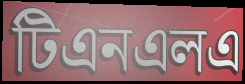
টিএনএলএ